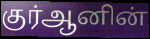
குர்ஆனின்